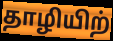
தாழியிற்